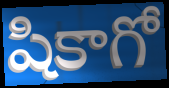
షికాగో